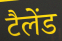
टैलेंड